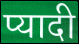
प्यादी